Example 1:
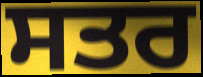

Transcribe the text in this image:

ਸਤਰ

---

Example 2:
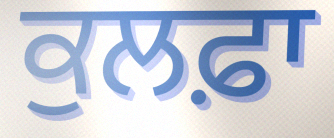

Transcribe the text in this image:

ਕੁਲਫ਼ਾ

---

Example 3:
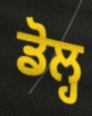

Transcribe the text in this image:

ਡੋਲ੍ਹ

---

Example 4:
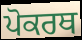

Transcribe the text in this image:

ਪੋਕਰਥ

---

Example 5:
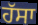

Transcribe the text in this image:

ਹੱਸਾ